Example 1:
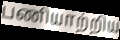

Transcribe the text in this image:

பணியாற்றிய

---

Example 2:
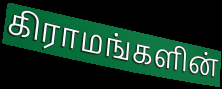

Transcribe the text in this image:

கிராமங்களின்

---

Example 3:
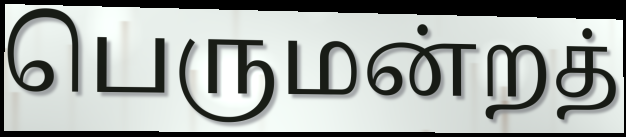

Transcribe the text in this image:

பெருமன்றத்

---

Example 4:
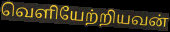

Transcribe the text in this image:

வெளியேற்றியவன்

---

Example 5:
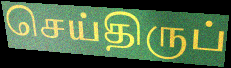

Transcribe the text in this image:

செய்திருப்